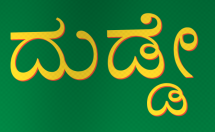
ದುಡ್ಡೇ